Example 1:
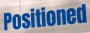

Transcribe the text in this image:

Positioned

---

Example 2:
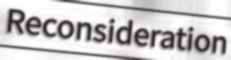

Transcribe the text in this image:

Reconsideration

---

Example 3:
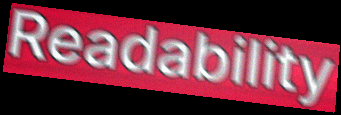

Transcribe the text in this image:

Readability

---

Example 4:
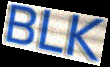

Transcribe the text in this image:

BLK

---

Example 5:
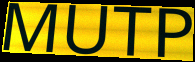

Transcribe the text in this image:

MUTP